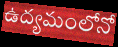
ఉద్యమంలోనో